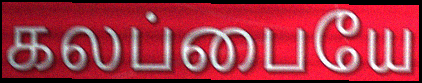
கலப்பையே